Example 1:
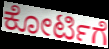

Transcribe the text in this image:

ಕೋರ್ಟಿಗೆ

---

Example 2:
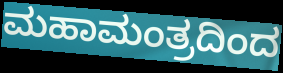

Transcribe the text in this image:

ಮಹಾಮಂತ್ರದಿಂದ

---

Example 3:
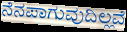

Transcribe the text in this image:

ನೆನಪಾಗುವುದಿಲ್ಲವೆ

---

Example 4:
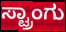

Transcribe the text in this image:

ಸ್ಟ್ರಾಂಗು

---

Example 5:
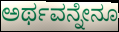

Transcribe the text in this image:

ಅರ್ಥವನ್ನೇನೂ